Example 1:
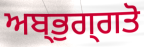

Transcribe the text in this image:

ਅਬ੍ਭੁਗ੍ਗਤੋ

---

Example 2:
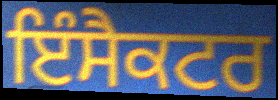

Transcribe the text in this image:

ਇੰਸੈਕਟਰ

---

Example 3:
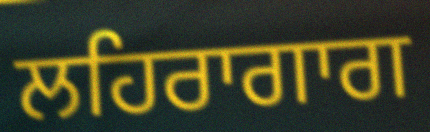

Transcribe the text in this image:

ਲਹਿਰਾਗਾਗ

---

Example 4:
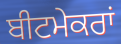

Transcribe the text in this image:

ਬੀਟਮੇਕਰਾਂ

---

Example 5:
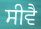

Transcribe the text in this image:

ਸੀਵੈ